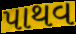
પાથવ